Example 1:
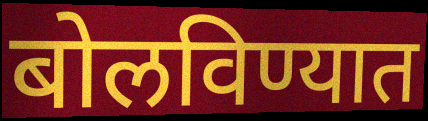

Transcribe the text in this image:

बोलविण्यात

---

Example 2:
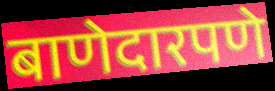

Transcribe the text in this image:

बाणेदारपणे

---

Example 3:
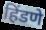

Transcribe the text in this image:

हिंडणे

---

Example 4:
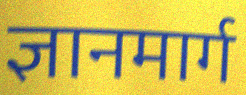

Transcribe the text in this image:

ज्ञानमार्ग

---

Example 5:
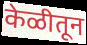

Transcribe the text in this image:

केळीतून